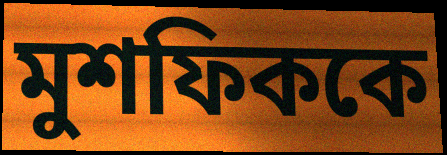
মুশফিককে